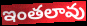
ఇంతలావు